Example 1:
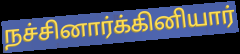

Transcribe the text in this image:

நச்சினார்க்கினியார்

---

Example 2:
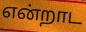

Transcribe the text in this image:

என்றாட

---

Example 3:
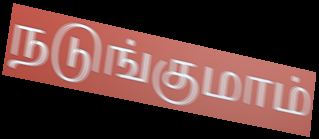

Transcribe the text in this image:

நடுங்குமாம்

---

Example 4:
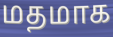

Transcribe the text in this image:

மதமாக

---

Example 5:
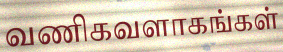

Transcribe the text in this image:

வணிகவளாகங்கள்